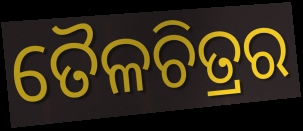
ତୈଳଚିତ୍ରର